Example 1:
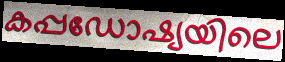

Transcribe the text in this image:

കപ്പഡോഷ്യയിലെ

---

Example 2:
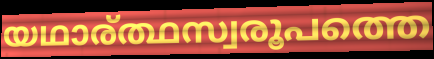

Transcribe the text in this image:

യഥാര്ത്ഥസ്വരൂപത്തെ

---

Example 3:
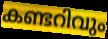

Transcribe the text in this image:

കണ്ടറിവും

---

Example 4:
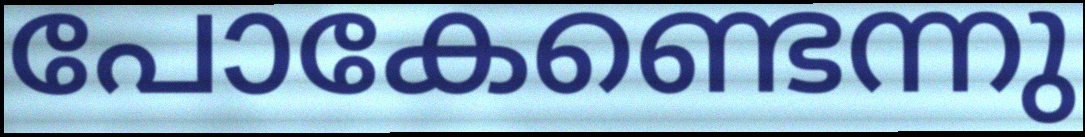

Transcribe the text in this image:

പോകേണ്ടെന്നു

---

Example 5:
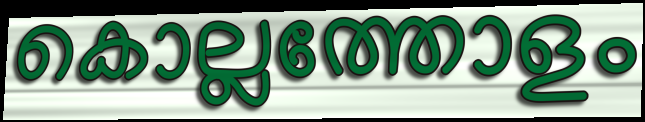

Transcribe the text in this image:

കൊല്ലത്തോളം